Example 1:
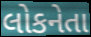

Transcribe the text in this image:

લોકનેતા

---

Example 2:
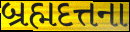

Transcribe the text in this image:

બ્રહ્મદત્તના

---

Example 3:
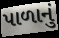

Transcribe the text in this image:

પાળાનું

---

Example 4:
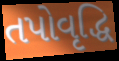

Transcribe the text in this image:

તપોવૃદ્ધિ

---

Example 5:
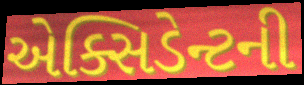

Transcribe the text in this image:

એક્સિડેન્ટની